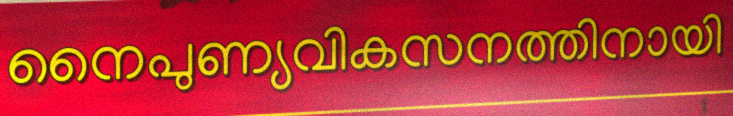
നൈപുണ്യവികസനത്തിനായി